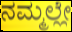
ನಮ್ಮಲ್ಲೇ